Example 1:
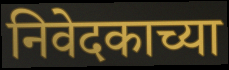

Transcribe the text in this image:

निवेदकाच्या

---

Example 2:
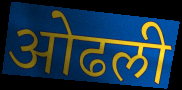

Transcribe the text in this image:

ओढली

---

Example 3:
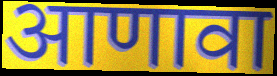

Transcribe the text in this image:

आणावा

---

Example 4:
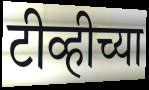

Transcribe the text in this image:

टीव्हीच्या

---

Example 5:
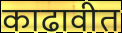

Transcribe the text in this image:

काढावीत